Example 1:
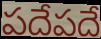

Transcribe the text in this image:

పదేపదే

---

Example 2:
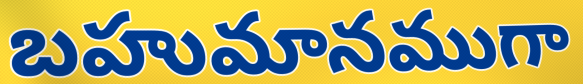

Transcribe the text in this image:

బహుమానముగా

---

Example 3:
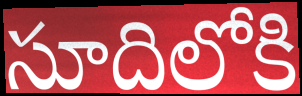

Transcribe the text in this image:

సూదిలోకి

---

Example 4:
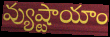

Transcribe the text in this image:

వ్యుష్టాయాం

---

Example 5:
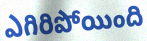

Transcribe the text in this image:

ఎగిరిపోయింది